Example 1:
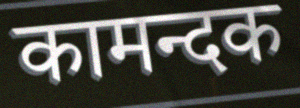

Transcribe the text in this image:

कामन्दक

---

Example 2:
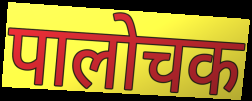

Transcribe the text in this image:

पालोचक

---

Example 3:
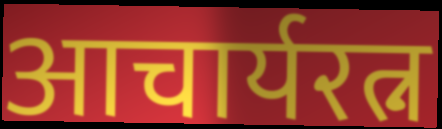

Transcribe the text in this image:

आचार्यरत्न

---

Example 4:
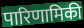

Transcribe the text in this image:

पारिणामिकी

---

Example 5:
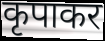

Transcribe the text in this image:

कृपाकर